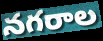
నగరాల